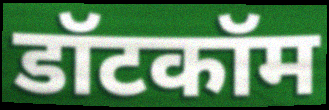
डॉटकॉम